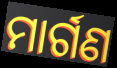
ମାର୍ଗଣ